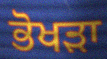
ਭੋਖੜਾ